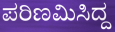
ಪರಿಣಮಿಸಿದ್ದ